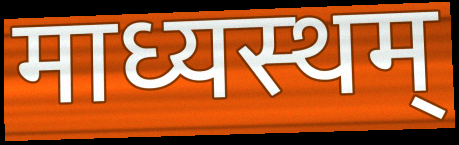
माध्यस्थम्